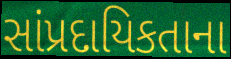
સાંપ્રદાયિકતાના